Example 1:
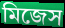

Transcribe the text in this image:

মিজেস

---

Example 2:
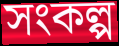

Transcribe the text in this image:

সংকল্প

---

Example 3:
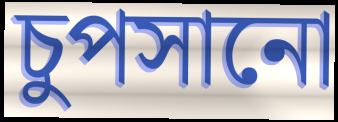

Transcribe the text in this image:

চুপসানো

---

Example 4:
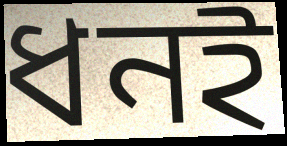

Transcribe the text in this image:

ধনই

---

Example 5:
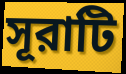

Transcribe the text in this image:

সূরাটি